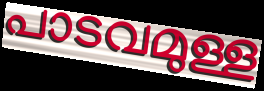
പാടവമുള്ള